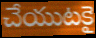
చేయుటకై